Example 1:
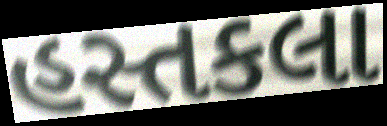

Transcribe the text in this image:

હસ્તકલા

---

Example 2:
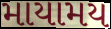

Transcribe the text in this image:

માયામય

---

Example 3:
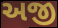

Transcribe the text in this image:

અજી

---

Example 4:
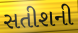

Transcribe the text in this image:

સતીશની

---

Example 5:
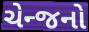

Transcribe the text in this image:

ચેન્જનો